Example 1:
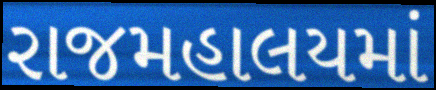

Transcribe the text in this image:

રાજમહાલયમાં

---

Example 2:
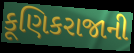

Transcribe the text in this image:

કૂણિકરાજાની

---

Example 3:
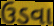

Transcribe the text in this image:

ઉડવા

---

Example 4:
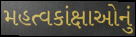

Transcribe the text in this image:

મહત્વકાંક્ષાઓનું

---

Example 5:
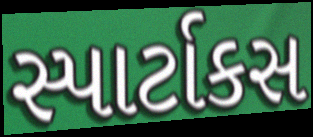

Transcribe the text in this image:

સ્પાર્ટાકસ